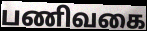
பணிவகை